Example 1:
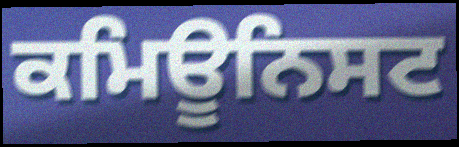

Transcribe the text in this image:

ਕਮਿਊਨਿਸਟ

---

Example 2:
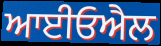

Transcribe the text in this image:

ਆਈਓਐਲ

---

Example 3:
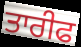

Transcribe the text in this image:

ਤਾਰੀਫ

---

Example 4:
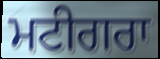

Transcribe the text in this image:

ਮਟੀਗਰਾ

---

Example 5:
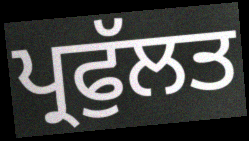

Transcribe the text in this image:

ਪ੍ਰਫੁੱਲਤ